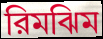
রিমঝিম